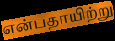
என்பதாயிற்று